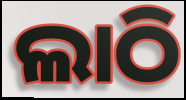
ଲାଠି